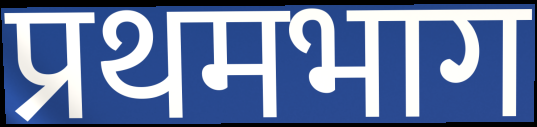
प्रथमभाग